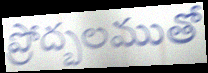
ప్రోద్బలముతో